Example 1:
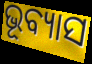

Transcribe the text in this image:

ଭୂବ୍ୟାସ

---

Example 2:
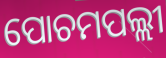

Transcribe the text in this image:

ପୋଚମପଲ୍ଲୀ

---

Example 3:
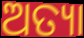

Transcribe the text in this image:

ଅତ୍ୟା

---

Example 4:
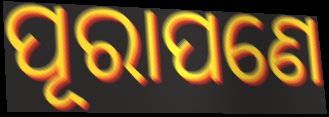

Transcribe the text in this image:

ପୂରାପଣେ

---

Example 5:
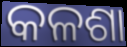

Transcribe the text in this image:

କଳଶା